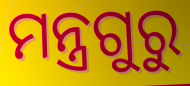
ମନ୍ତ୍ରଗୁରୁ